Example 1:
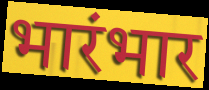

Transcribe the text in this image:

भारंभार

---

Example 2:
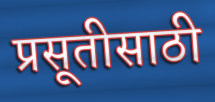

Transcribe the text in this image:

प्रसूतीसाठी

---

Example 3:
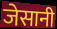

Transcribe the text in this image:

जेसानी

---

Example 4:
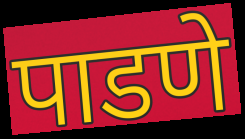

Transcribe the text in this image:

पाडणे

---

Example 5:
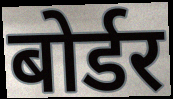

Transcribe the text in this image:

बोर्डर